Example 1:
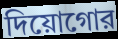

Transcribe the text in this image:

দিয়োগোর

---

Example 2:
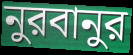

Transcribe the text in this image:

নুরবানুর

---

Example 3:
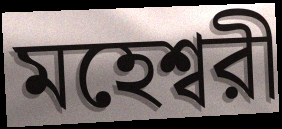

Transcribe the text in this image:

মহেশ্বরী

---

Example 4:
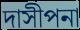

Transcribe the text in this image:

দাসীপনা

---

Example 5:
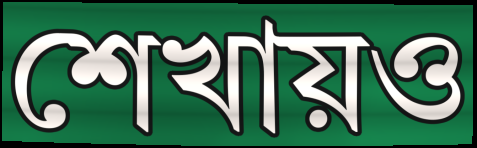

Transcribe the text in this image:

শেখায়ও